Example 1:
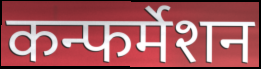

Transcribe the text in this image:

कन्‍फर्मेशन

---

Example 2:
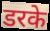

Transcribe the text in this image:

डरके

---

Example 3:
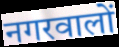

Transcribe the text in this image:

नगरवालों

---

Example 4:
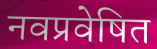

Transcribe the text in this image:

नवप्रवेषित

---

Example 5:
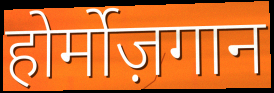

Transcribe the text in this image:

होर्मोज़गान